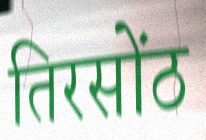
तिरसोंठ